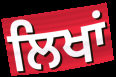
ਲਿਖਾਂ